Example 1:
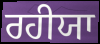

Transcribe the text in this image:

ਰਹੀਯਾ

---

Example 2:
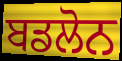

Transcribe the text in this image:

ਬਡਲੋਨ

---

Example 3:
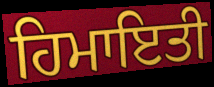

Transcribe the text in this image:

ਹਿਮਾਇਤੀ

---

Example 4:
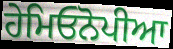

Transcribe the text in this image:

ਹੇਮਿਓਨੋਪੀਆ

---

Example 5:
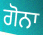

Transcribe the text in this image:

ਗੋਨਾ